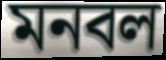
মনবল